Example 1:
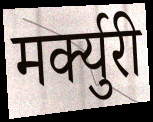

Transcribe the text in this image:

मर्क्युरी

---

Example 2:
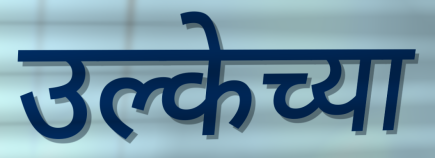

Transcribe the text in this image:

उल्केच्या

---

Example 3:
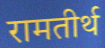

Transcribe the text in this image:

रामतीर्थ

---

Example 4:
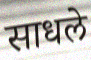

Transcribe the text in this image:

साधले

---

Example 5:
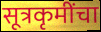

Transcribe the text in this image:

सूत्रकृमींचा